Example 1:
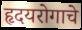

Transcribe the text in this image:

हृदयरोगाचे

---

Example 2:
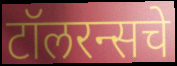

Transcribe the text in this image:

टॉलरन्सचे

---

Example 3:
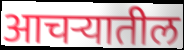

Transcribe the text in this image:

आचऱ्यातील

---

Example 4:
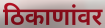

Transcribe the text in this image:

ठिकाणांवर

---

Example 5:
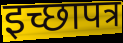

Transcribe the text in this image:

इच्छापत्र